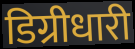
डिग्रीधारी